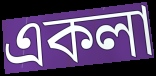
একলা